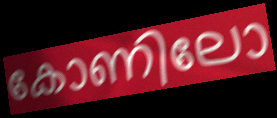
കോണിലോ